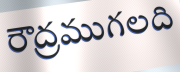
రౌద్రముగలది